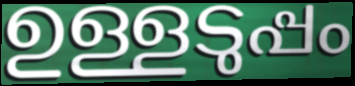
ഉള്ളടുപ്പം